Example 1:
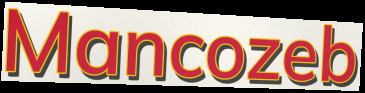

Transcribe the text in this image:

Mancozeb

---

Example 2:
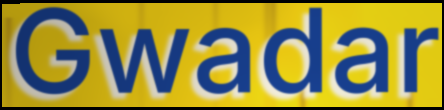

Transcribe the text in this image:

Gwadar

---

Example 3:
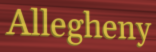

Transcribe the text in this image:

Allegheny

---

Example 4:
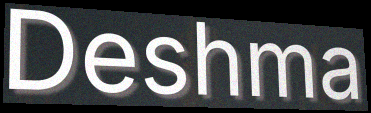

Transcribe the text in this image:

Deshma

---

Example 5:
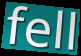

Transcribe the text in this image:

fell